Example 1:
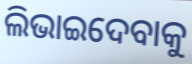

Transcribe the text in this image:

ଲିଭାଇଦେବାକୁ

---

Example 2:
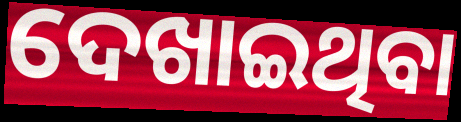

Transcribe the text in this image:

ଦେଖାଇଥିବା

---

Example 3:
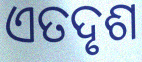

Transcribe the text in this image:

ଏତଦୃଶ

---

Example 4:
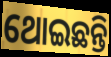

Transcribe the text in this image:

ଥୋଇଛନ୍ତି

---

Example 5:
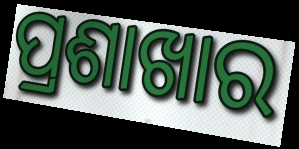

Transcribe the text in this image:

ପ୍ରଶାଖାର